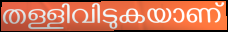
തള്ളിവിടുകയാണ്